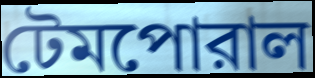
টেমপোরাল